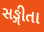
સઙ્ગીતા